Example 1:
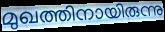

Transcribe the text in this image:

മുഖത്തിനായിരുന്നു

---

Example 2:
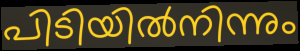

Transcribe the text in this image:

പിടിയിൽനിന്നും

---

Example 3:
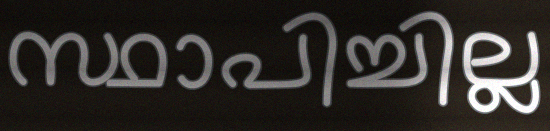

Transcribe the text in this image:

സ്ഥാപിച്ചില്ല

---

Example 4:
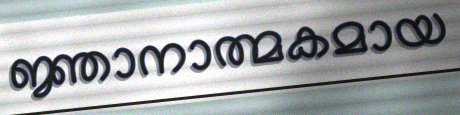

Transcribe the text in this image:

ജ്ഞാനാത്മകമായ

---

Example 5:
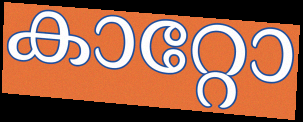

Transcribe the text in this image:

കാറ്റോ